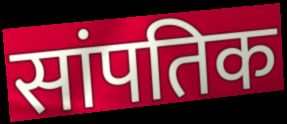
सांपतिक